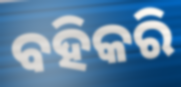
ବହିକରି